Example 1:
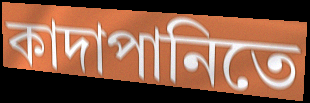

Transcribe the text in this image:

কাদাপানিতে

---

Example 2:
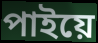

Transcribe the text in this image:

পাইয়ে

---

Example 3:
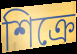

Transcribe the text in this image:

শিক্রে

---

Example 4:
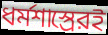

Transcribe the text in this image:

ধর্মশাস্ত্রেরই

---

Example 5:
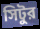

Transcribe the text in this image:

সিটুর